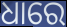
ଧାରେ